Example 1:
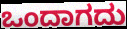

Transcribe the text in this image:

ಒಂದಾಗದು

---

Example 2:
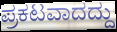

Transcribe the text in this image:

ಪ್ರಕಟವಾದದ್ದು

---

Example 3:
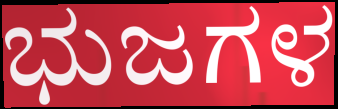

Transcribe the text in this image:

ಭುಜಗಳ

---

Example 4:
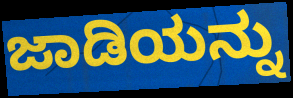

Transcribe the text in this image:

ಜಾಡಿಯನ್ನು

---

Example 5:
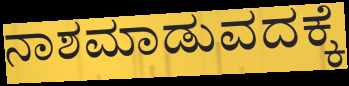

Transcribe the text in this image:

ನಾಶಮಾಡುವದಕ್ಕೆ